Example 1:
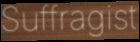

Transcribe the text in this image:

Suffragist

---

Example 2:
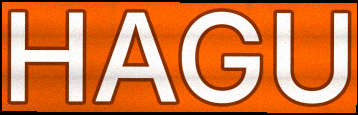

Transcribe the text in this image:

HAGU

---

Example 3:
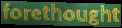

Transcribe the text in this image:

forethought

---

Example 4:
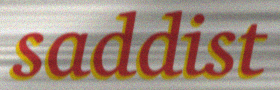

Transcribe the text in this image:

saddist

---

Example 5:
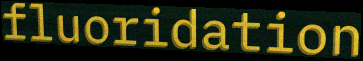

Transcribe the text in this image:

fluoridation